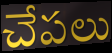
చేపలు